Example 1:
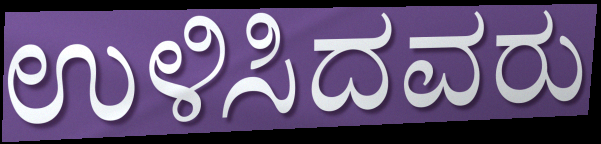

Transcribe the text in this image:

ಉಳಿಸಿದವರು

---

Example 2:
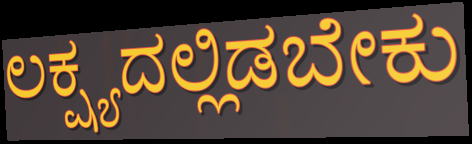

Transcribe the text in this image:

ಲಕ್ಷ್ಯದಲ್ಲಿಡಬೇಕು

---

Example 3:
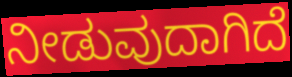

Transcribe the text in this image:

ನೀಡುವುದಾಗಿದೆ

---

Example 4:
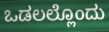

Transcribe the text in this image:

ಒಡಲಲ್ಲೊಂದು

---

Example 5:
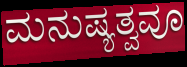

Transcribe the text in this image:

ಮನುಷ್ಯತ್ವವೂ